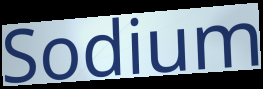
Sodium